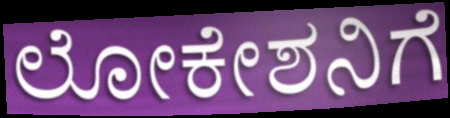
ಲೋಕೇಶನಿಗೆ